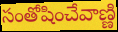
సంతోషించేవాణ్ణి